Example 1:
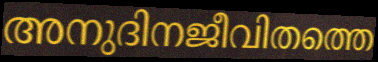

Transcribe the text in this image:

അനുദിനജീവിതത്തെ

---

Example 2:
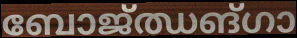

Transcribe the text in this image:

ബോജ്ഝങ്ഗാ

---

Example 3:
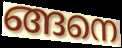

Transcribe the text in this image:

ങ്ങനെ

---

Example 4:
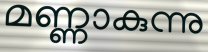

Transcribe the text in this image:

മണ്ണാകുന്നു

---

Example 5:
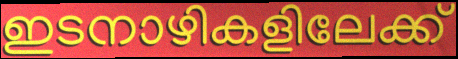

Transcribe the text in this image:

ഇടനാഴികളിലേക്ക്